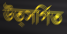
উত্সর্গিত